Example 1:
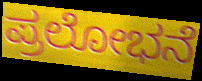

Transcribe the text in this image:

ಪ್ರಲೋಭನೆ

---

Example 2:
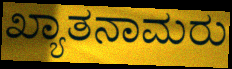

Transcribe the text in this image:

ಖ್ಯಾತನಾಮರು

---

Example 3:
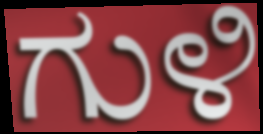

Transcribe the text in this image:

ಗುಳಿ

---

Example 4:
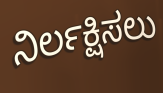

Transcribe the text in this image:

ನಿರ್ಲಕ್ಷಿಸಲು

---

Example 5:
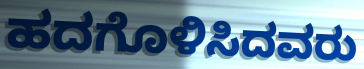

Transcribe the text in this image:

ಹದಗೊಳಿಸಿದವರು